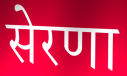
सेरणा